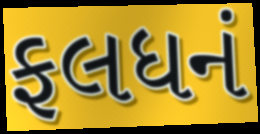
ફલધનં